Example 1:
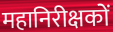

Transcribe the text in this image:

महानिरीक्षकों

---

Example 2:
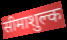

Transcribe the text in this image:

सीमाशुल्क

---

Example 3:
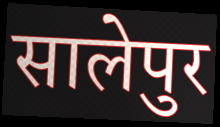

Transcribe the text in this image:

सालेपुर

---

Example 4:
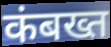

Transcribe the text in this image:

कंबख्त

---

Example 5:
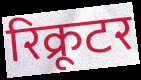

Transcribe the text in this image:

रिक्रूटर